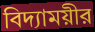
বিদ্যাময়ীর